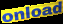
onload